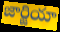
జార్జియా